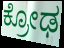
ಕ್ರೋಢ